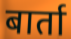
बार्ता